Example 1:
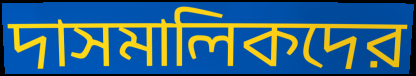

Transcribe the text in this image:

দাসমালিকদের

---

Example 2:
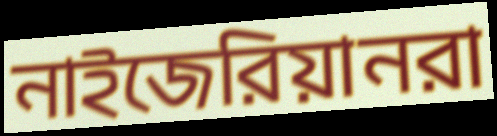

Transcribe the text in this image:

নাইজেরিয়ানরা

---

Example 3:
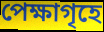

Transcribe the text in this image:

পেক্ষাগৃহে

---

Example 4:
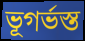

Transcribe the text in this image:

ভূগর্ভস্ত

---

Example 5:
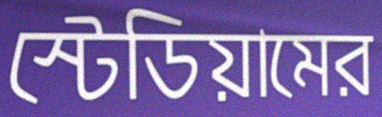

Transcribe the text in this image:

স্টেডিয়ামের